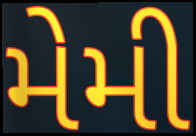
મેમી